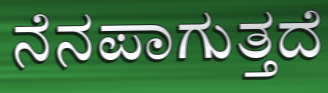
ನೆನಪಾಗುತ್ತದೆ